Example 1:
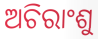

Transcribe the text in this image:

ଅଚିରାଂଶୁ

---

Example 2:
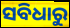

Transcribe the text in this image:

ସବିଧାରୁ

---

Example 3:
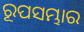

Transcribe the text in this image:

ରୂପସମ୍ଭାର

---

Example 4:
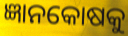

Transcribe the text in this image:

ଜ୍ଞାନକୋଷକୁ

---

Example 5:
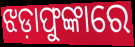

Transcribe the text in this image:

ଝଡ଼ାଫୁଙ୍କାରେ